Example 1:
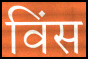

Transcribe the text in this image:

विंस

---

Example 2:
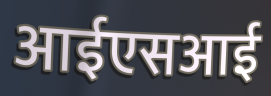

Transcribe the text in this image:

आईएसआई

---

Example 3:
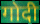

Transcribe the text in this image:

गोदी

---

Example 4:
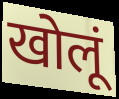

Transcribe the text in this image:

खोलूं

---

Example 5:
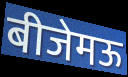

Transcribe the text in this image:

बीजेमऊ